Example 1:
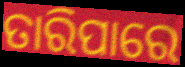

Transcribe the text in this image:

ତାରିପାରେ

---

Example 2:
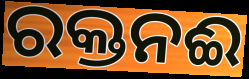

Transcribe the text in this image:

ରକ୍ତନଈ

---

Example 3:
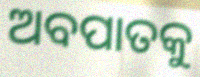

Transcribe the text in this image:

ଅବପାତକୁ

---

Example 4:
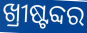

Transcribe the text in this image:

ଖ୍ରୀଷ୍ଟବ୍ଦର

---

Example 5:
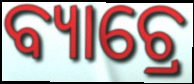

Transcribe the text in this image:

ବ୍ୟାଚ୍ରେ